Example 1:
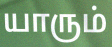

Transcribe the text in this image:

யாரும்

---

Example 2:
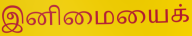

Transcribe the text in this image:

இனிமையைக்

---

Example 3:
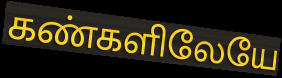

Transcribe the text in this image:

கண்களிலேயே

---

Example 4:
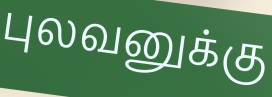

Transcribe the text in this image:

புலவனுக்கு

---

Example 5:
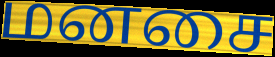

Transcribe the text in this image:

மனசை